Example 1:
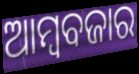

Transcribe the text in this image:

ଆମ୍ୱବଜାର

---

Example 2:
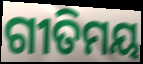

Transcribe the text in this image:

ଗୀତିମୟ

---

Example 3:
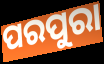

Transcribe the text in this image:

ପରପୁରା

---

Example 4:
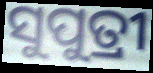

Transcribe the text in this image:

ସୁପୁତ୍ରୀ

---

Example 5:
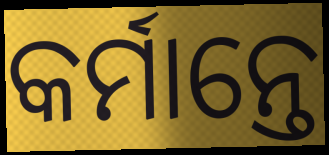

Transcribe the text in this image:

କର୍ମାନ୍ତେ